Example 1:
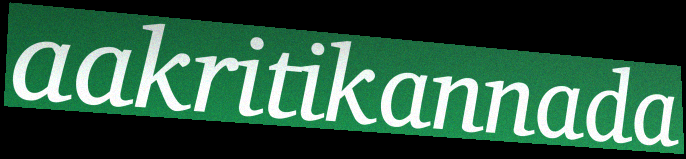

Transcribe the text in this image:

aakritikannada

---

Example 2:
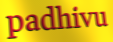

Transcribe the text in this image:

padhivu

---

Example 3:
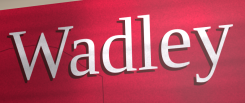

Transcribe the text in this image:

Wadley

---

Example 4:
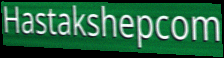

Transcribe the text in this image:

Hastakshepcom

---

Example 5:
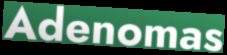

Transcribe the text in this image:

Adenomas